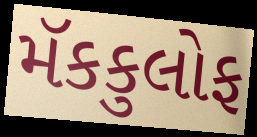
મૅકકુલોફ